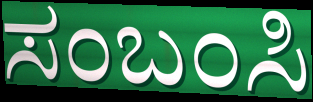
ಸಂಬಂಸಿ